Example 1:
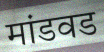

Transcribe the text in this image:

मांडवड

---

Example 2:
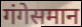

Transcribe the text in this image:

गंगेसमान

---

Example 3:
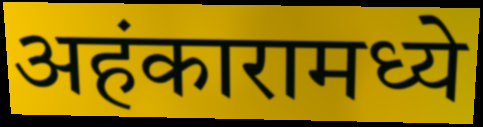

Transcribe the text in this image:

अहंकारामध्ये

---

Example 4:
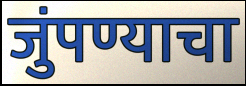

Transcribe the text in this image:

जुंपण्याचा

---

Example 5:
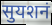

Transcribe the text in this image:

सुयशनं